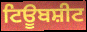
ਟਿਊਬਸ਼ੀਟ